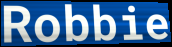
Robbie